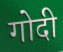
गोदी